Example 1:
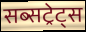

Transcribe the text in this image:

सब्सट्रेट्स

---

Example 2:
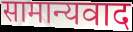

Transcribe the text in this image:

सामान्यवाद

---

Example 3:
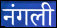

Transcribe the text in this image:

नंगली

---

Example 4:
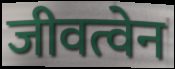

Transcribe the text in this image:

जीवत्वेन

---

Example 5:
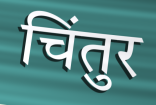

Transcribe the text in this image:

चिंतुर